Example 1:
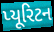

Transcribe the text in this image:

પ્યૂરિટન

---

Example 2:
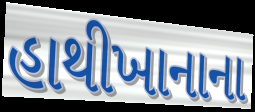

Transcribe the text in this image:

હાથીખાનાના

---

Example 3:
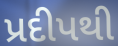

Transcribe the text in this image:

પ્રદીપથી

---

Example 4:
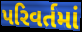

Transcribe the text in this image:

પરિવર્તમાં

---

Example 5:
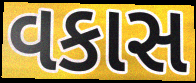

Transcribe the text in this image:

વકાસ